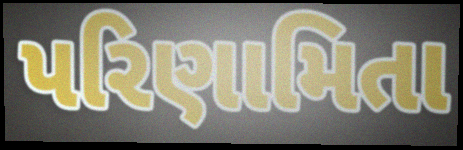
પરિણામિતા